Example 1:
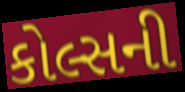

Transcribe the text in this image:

કોલ્સની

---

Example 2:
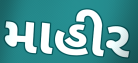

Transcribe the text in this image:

માહીર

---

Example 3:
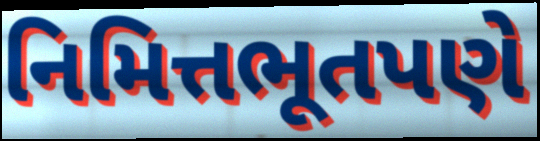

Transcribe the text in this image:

નિમિત્તભૂતપણે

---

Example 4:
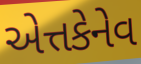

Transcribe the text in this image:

એત્તકેનેવ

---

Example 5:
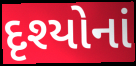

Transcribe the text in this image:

દૃશ્યોનાં